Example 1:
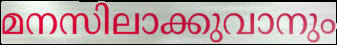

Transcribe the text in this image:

മനസിലാക്കുവാനും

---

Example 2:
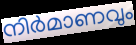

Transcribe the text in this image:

നിർമാണവും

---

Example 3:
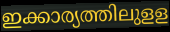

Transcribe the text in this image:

ഇക്കാര്യത്തിലുളള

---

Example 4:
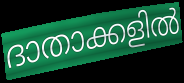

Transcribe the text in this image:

ദാതാക്കളിൽ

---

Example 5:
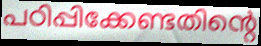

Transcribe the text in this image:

പഠിപ്പിക്കേണ്ടതിന്റെ